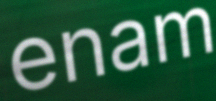
enam